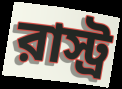
রাস্ট্র